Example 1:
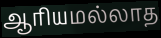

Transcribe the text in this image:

ஆரியமல்லாத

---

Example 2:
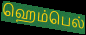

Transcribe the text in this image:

ஹெம்பெல்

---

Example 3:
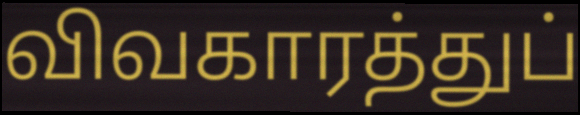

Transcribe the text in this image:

விவகாரத்துப்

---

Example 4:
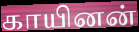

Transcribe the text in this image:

காயினன்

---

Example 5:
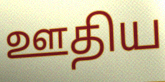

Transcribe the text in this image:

ஊதிய